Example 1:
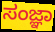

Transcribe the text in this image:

ಸಂಜ್ಞಾ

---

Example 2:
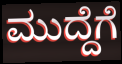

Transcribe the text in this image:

ಮುದ್ದೆಗೆ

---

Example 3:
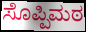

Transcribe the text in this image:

ಸೊಪ್ಪಿಮಠ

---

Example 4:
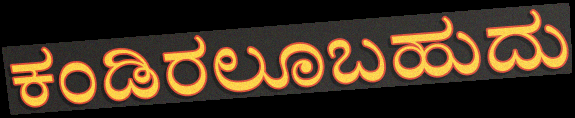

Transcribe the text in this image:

ಕಂಡಿರಲೂಬಹುದು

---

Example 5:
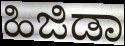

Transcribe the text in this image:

ಹಿಜಿಡಾ